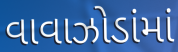
વાવાઝોડાંમાં